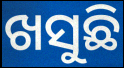
ଖସୁଛି